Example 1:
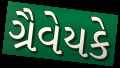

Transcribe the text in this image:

ગ્રૈવેયકે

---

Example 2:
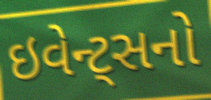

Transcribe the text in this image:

ઇવેન્ટ્સનો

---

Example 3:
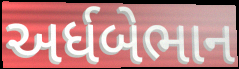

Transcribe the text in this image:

અર્ધબેભાન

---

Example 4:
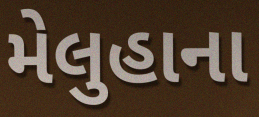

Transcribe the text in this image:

મેલુહાના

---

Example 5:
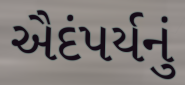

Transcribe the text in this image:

ઐદંપર્યનું